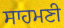
ਸਾਹਮਣੀ